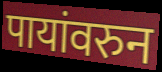
पायांवरुन